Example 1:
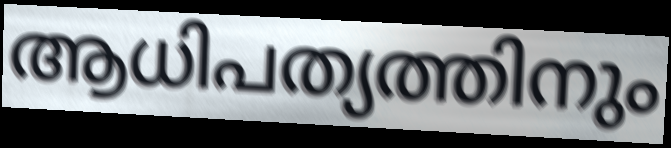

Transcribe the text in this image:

ആധിപത്യത്തിനും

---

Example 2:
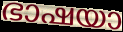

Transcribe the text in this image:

ഭാഷയാ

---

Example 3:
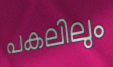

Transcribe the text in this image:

പകലിലും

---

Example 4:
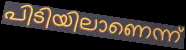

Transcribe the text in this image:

പിടിയിലാണെന്ന്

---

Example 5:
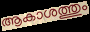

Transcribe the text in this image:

ആകാശത്തും